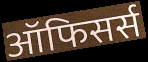
ऑफिसर्स